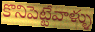
కొనిపెట్టేవాళ్ళు